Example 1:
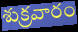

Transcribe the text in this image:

శుక్రవారం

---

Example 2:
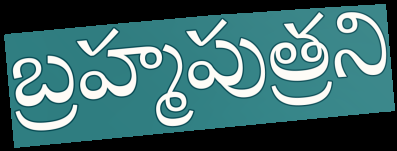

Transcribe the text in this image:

బ్రహ్మపుత్రని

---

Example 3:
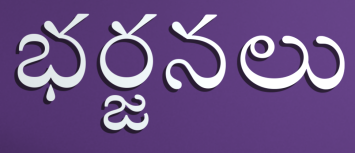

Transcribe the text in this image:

భర్జనలు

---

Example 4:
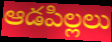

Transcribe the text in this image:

ఆడపిల్లలు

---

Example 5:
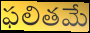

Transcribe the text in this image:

ఫలితమే